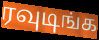
ரவுடிங்க